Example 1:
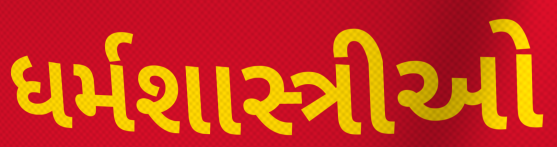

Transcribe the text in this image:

ધર્મશાસ્ત્રીઓ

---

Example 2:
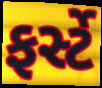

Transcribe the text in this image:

ફર્સ્ટે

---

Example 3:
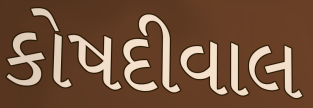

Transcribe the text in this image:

કોષદીવાલ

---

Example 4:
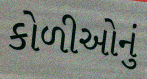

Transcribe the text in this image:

કોળીઓનું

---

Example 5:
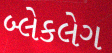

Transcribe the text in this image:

બ્લેકલેગ